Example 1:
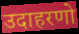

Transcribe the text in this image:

उदाहरणो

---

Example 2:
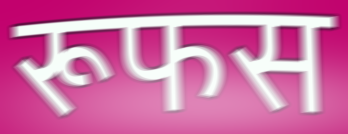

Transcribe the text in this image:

रूफस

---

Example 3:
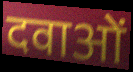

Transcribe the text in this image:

दवाओं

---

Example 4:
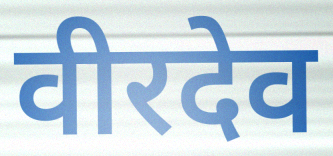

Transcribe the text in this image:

वीरदेव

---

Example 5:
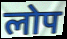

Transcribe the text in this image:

लोप